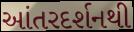
આંતરદર્શનથી